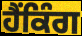
ਹੈਂਕਿੰਗ